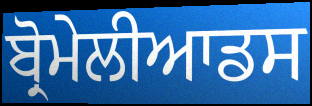
ਬ੍ਰੋਮੇਲੀਆਡਸ